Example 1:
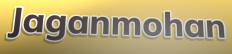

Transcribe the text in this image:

Jaganmohan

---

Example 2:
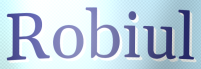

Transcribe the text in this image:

Robiul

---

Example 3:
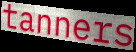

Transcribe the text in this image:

tanners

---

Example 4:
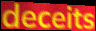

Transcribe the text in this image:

deceits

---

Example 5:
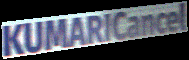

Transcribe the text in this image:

KUMARICancel